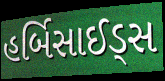
હર્બિસાઈડ્સ